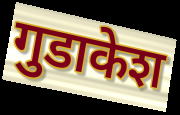
गुडाकेश